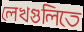
লেখগুলিতে